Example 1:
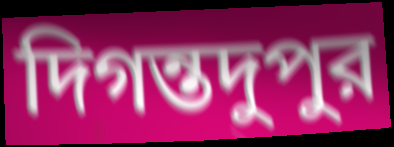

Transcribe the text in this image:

দিগন্তদুপুর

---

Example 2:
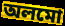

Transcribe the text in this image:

অলমো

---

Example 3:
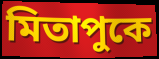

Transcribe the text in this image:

মিতাপুকে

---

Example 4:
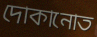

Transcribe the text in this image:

দোকানোত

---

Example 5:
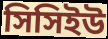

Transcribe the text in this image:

সিসিইউ